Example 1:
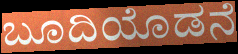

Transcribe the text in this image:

ಬೂದಿಯೊಡನೆ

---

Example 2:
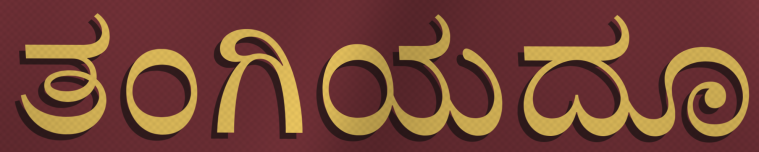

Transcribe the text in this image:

ತಂಗಿಯದೂ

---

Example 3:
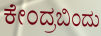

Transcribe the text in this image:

ಕೇಂದ್ರಬಿಂದು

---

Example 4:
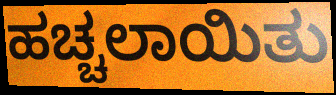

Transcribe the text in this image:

ಹಚ್ಚಲಾಯಿತು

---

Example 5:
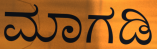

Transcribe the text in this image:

ಮಾಗಡಿ